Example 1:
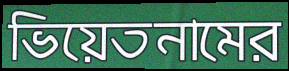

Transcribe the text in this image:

ভিয়েতনামের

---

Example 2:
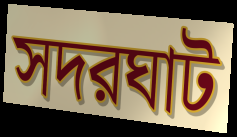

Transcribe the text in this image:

সদরঘাট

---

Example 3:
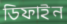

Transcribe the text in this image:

ডিফাইন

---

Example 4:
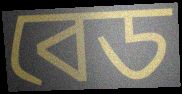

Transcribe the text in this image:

বেড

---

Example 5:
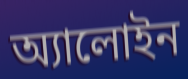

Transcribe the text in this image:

অ্যালোইন